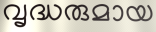
വൃദ്ധരുമായ